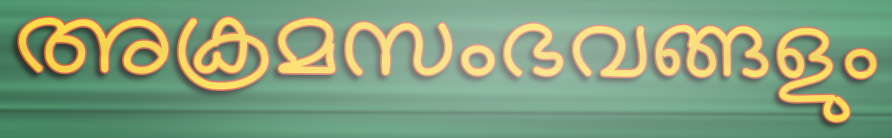
അക്രമസംഭവങ്ങളും